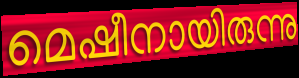
മെഷീനായിരുന്നു